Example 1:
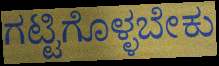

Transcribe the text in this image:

ಗಟ್ಟಿಗೊಳ್ಳಬೇಕು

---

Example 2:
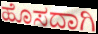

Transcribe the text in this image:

ಹೊಸದಾಗಿ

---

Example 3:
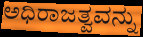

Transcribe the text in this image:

ಅಧಿರಾಜತ್ವವನ್ನು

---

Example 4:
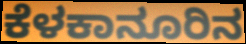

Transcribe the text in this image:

ಕೆಳಕಾನೂರಿನ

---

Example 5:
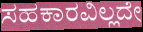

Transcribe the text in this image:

ಸಹಕಾರವಿಲ್ಲದೇ